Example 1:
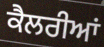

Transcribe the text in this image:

ਕੈਲਰੀਆਂ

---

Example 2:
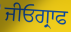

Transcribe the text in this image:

ਜੀਓਗ੍ਰਾਫ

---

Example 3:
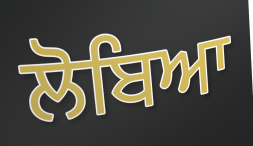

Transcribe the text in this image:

ਲੋਬਿਆ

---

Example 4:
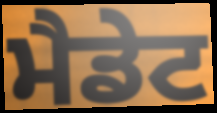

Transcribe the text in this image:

ਮੈਡੇਟ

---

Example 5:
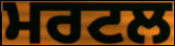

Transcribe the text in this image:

ਮਰਟਲ